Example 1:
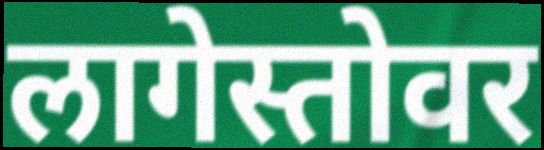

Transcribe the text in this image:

लागेस्तोवर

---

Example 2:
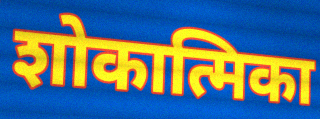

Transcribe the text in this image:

शोकात्मिका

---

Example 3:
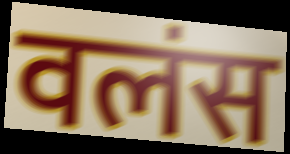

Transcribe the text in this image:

वलंस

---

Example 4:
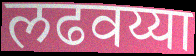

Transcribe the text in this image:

लढवय्या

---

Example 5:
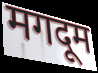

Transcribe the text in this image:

मगदूम